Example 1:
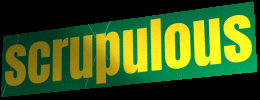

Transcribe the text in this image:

scrupulous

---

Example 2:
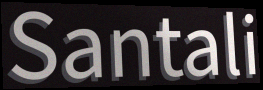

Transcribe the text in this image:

Santali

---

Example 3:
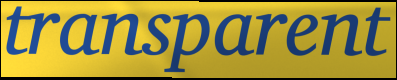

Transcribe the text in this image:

transparent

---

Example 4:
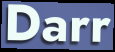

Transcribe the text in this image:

Darr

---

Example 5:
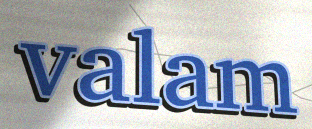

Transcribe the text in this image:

valam